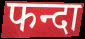
फन्दा